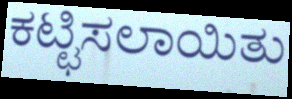
ಕಟ್ಟಿಸಲಾಯಿತು